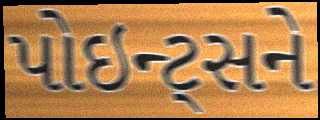
પોઇન્ટ્સને